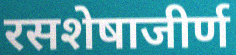
रसशेषाजीर्ण